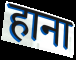
हाना